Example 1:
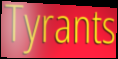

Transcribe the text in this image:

Tyrants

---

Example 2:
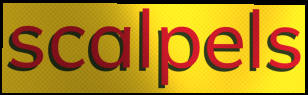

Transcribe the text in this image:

scalpels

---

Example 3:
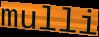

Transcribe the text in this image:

mulli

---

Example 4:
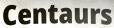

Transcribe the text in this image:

Centaurs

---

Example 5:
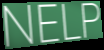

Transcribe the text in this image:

NELP